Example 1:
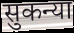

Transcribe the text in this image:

सुकन्या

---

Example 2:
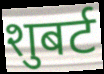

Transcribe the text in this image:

शुबर्ट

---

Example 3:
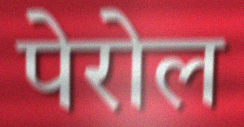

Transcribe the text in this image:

पेरोल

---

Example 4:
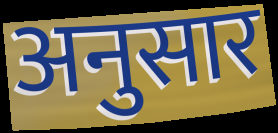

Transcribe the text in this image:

अनुसार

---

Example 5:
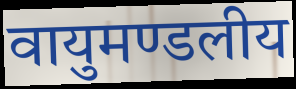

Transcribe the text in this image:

वायुमण्डलीय